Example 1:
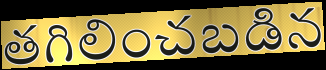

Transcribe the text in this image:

తగిలించబడిన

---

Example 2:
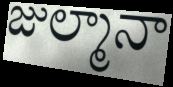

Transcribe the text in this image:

జుల్మానా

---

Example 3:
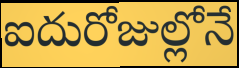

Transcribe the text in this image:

ఐదురోజుల్లోనే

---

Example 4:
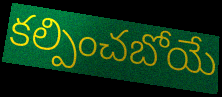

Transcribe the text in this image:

కల్పించబోయే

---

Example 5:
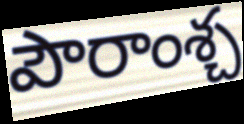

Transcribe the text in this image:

పౌరాంశ్చ